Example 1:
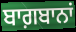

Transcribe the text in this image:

ਬਾਗ਼ਬਾਨਾਂ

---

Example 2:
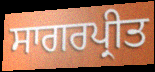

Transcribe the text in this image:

ਸਾਗਰਪ੍ਰੀਤ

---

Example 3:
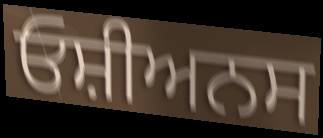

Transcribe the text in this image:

ਓਸ਼ੀਅਨਸ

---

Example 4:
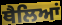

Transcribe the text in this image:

ਥੈਲਿਆਂ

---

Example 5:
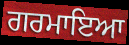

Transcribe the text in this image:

ਗਰਮਾਇਆ